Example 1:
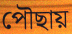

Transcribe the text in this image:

পৌছায়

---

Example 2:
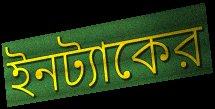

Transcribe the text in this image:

ইনট্যাকের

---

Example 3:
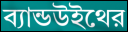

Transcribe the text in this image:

ব্যান্ডউইথের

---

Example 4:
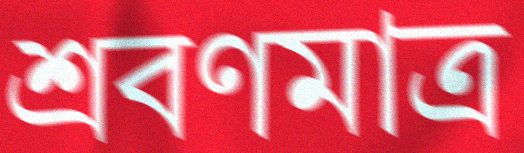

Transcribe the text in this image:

শ্রবণমাত্র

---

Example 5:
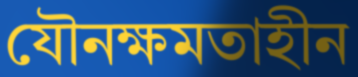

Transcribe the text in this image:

যৌনক্ষমতাহীন